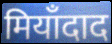
मियाँदाद